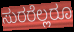
ಸುರರೆಲ್ಲರೂ